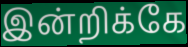
இன்றிக்கே